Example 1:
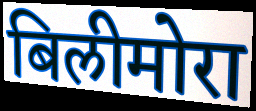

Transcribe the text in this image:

बिलीमोरा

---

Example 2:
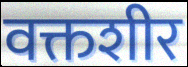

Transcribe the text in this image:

वक्तशीर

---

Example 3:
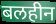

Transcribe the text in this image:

बलहीन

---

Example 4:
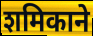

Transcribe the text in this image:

शमिकाने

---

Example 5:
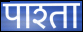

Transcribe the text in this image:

पाश्ता